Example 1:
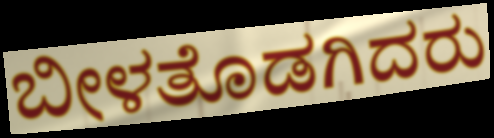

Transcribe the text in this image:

ಬೀಳತೊಡಗಿದರು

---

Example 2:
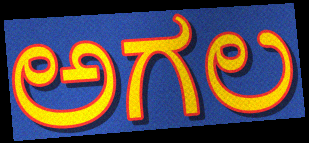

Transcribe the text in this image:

ಅಗಲ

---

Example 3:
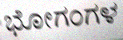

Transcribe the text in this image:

ಭೋಗಂಗಳ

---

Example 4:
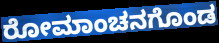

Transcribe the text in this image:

ರೋಮಾಂಚನಗೊಂಡ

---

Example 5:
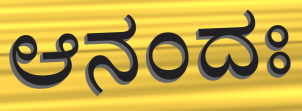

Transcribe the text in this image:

ಆನಂದಃ